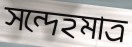
সন্দেহমাত্র